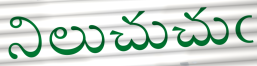
నిలుచుచుఁ